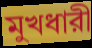
মুখধারী